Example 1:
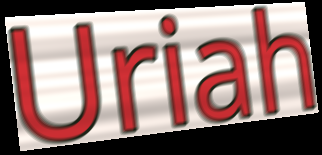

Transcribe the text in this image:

Uriah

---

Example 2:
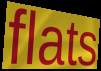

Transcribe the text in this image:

flats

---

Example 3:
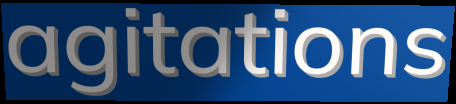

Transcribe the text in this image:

agitations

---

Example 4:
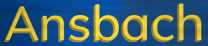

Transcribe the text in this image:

Ansbach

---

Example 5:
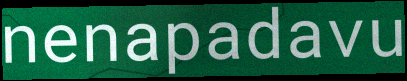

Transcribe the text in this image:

nenapadavu